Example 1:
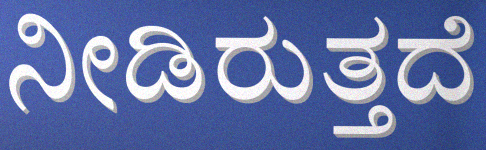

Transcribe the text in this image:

ನೀಡಿರುತ್ತದೆ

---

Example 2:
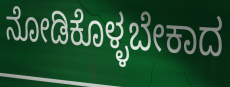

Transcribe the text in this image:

ನೋಡಿಕೊಳ್ಳಬೇಕಾದ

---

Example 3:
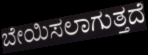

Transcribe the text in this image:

ಬೇಯಿಸಲಾಗುತ್ತದೆ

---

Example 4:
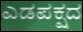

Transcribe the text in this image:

ಎಡಪಕ್ಷದ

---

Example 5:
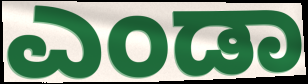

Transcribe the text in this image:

ಎಂಡಾ